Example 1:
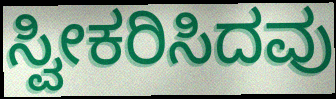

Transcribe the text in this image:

ಸ್ವೀಕರಿಸಿದವು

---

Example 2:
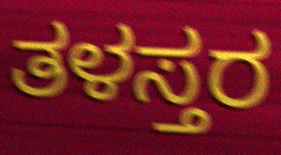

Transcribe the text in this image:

ತಳಸ್ತರ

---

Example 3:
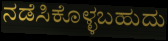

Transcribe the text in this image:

ನಡೆಸಿಕೊಳ್ಳಬಹುದು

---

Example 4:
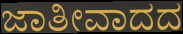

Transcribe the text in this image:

ಜಾತೀವಾದದ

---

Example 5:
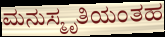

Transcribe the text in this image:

ಮನುಸ್ಮೃತಿಯಂತಹ